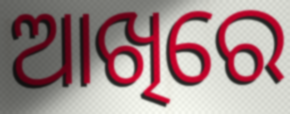
ଆଖିରେ